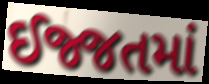
ઈજ્જતમાં